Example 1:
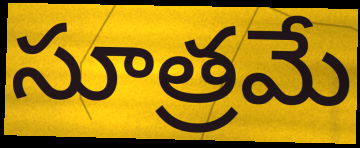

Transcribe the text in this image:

సూత్రమే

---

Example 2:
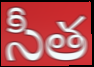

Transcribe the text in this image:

సీత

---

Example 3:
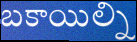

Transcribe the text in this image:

బకాయిల్ని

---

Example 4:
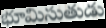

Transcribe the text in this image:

భూమిసుతుడు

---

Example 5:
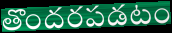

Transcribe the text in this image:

తొందరపడటం